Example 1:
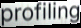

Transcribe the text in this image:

profiling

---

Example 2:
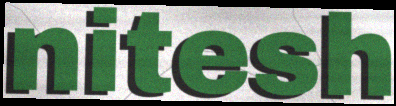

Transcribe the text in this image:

nitesh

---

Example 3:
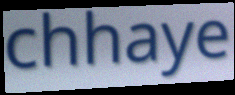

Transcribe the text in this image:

chhaye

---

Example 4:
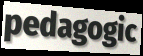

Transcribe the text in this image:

pedagogic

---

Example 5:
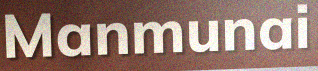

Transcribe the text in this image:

Manmunai